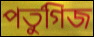
পর্তুগিজ